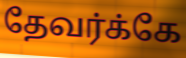
தேவர்க்கே